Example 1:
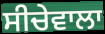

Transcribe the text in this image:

ਸੀਚੇਵਾਲਾ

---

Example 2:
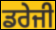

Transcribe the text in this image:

ਡਰੇਜੀ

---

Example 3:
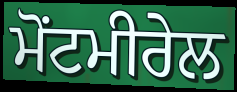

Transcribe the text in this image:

ਮੋਂਟਮੀਰੇਲ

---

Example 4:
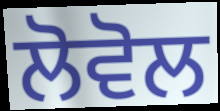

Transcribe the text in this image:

ਲੋਵੋਲ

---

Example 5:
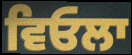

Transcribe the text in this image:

ਵਿਓਲਾ